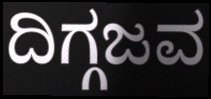
ದಿಗ್ಗಜವ